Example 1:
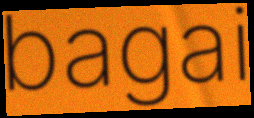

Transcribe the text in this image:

bagai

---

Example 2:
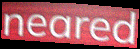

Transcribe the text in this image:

neared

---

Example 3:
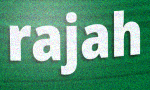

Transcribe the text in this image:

rajah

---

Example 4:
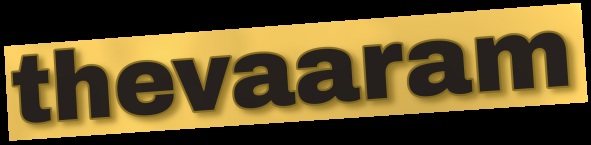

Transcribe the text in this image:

thevaaram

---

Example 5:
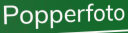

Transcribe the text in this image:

Popperfoto